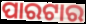
ପାରଟାର